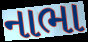
નાભા